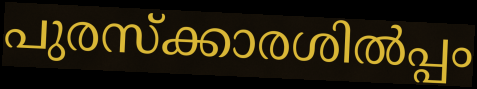
പുരസ്ക്കാരശിൽപ്പം